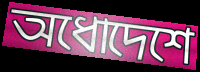
অধোদেশে